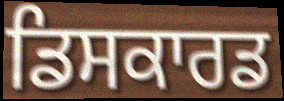
ਡਿਸਕਾਰਡ